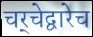
चर्चेद्वारेच